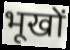
भूखों